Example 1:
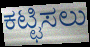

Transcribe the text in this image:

ಕಟ್ಟಿಸಲು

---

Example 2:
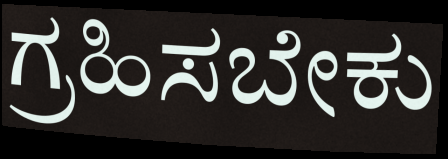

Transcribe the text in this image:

ಗ್ರಹಿಸಬೇಕು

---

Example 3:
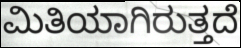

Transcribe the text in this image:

ಮಿತಿಯಾಗಿರುತ್ತದೆ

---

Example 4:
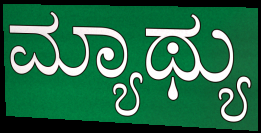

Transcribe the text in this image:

ಮ್ಯಾಥ್ಯು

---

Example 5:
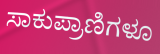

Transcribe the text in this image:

ಸಾಕುಪ್ರಾಣಿಗಳೂ